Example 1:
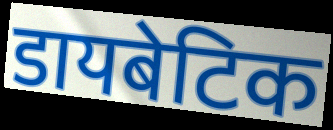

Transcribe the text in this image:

डायबेटिक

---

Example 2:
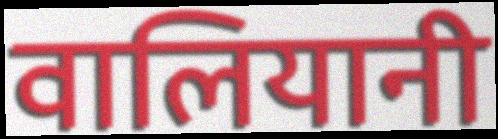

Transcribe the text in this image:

वालियानी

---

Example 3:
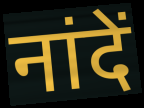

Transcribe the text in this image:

नांदें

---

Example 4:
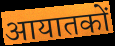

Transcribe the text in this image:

आयातकों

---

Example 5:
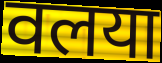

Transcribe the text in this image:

वलया